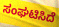
ಸಂಘಟಿಸಿದೆ